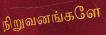
நிறுவனங்களே